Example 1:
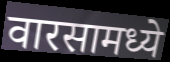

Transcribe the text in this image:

वारसामध्ये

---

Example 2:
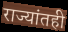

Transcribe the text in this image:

राज्यांतही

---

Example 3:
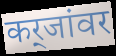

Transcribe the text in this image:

कर्जांवर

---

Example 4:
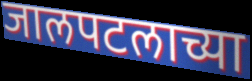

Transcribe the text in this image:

जालपटलाच्या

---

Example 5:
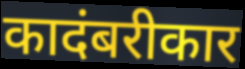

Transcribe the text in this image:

कादंबरीकार